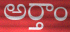
అర్తాం